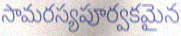
సామరస్యపూర్వకమైన